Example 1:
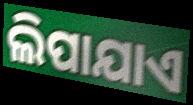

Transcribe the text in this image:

ଲିପାଯାଏ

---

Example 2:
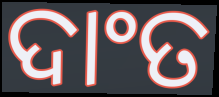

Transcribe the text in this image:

ଦାଂତ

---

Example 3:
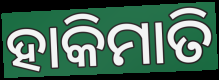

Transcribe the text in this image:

ହାକିମାତି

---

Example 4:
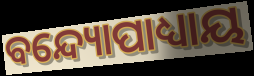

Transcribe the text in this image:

ବନ୍ଦ୍ୟୋପାଧ୍ୟାୟ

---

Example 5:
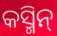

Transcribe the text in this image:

କସ୍ମିନ୍